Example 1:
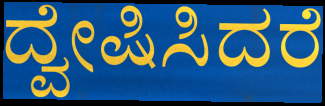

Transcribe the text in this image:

ದ್ವೇಷಿಸಿದರೆ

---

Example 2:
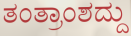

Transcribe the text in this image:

ತಂತ್ರಾಂಶದ್ದು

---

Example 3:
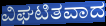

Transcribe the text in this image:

ವಿಘಟಿತವಾದ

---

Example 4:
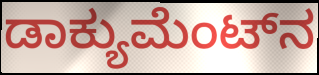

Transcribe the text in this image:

ಡಾಕ್ಯುಮೆಂಟ್‌ನ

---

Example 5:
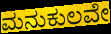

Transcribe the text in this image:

ಮನುಕುಲವೇ